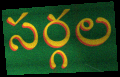
సర్గల